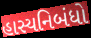
હાસ્યનિબંધો